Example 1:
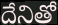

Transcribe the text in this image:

దేనితో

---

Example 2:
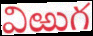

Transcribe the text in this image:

విఱుగ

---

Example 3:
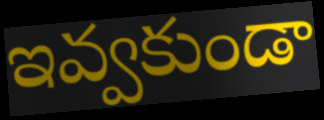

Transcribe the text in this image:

ఇవ్వకుండా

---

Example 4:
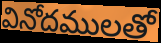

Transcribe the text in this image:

వినోదములతో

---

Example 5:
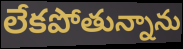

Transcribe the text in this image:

లేకపోతున్నాను